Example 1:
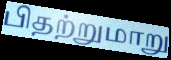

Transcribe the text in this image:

பிதற்றுமாறு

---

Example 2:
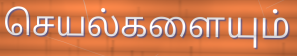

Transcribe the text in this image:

செயல்களையும்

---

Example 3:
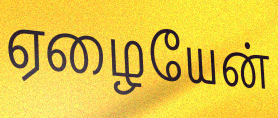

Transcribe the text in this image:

ஏழையேன்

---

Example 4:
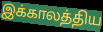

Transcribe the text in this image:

இக்காலத்திய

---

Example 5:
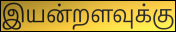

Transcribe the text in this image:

இயன்றளவுக்கு